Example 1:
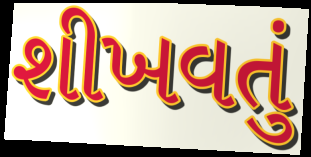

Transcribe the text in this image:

શીખવતું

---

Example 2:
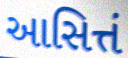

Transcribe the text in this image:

આસિત્તં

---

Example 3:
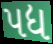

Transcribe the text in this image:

પદ્ય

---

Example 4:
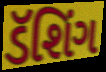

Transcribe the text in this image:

ડૅશિંગ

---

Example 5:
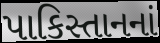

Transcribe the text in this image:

પાકિસ્તાનનાં